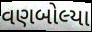
વણબોલ્યા